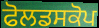
ਫੋਲਡਸਕੋਪ